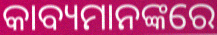
କାବ୍ୟମାନଙ୍କରେ